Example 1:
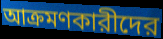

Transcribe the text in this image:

আক্রমণকারীদের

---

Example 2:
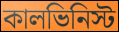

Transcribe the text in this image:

কালভিনিস্ট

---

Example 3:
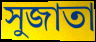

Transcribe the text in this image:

সুজাতা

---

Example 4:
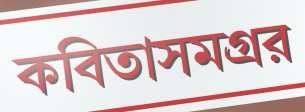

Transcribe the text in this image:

কবিতাসমগ্রর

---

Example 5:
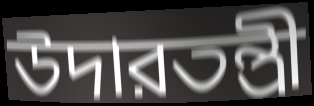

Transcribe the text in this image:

উদারতন্ত্রী